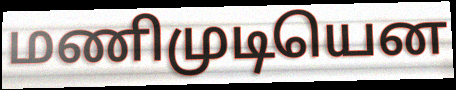
மணிமுடியென